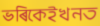
ভৰিকেইখনত